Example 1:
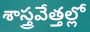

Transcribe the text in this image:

శాస్త్రవేత్తల్లో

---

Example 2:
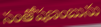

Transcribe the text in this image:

సంతోషణంబును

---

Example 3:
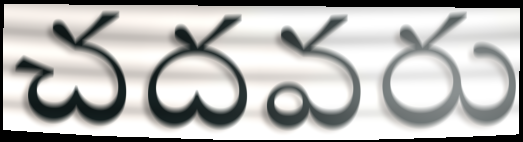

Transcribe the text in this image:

చదవరు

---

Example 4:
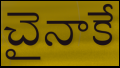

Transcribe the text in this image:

చైనాకే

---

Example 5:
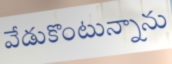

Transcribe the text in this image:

వేడుకొంటున్నాను